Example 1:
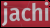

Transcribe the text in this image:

jachi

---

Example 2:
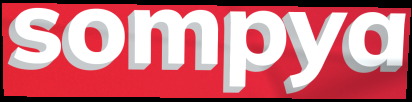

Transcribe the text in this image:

sompya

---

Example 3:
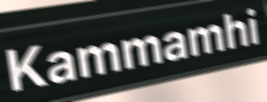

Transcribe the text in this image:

Kammamhi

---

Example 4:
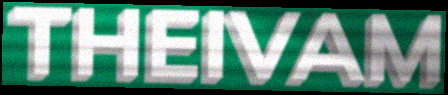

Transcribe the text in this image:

THEIVAM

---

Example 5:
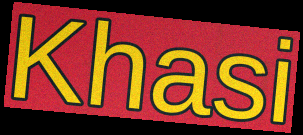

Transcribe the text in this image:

Khasi